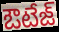
ఔటేజ్